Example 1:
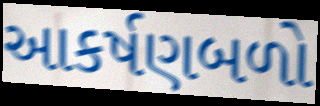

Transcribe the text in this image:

આકર્ષણબળો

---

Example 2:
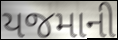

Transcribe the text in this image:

યજમાની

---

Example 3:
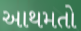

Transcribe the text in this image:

આથમતો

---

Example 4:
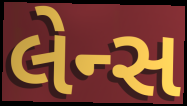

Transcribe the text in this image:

લેન્સ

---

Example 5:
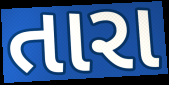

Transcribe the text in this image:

તારા